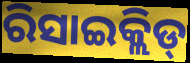
ରିସାଇକ୍ଲିଡ୍